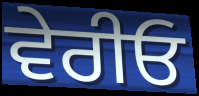
ਵੇਰੀਓ